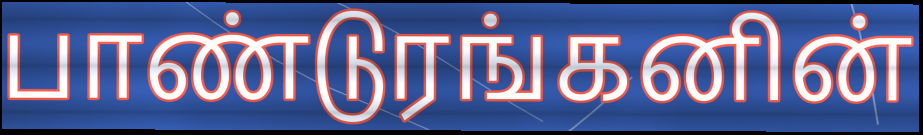
பாண்டுரங்கனின்